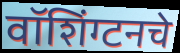
वॉशिंग्टनचे